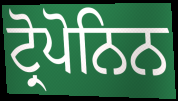
ਟ੍ਰੋਪੋਨਿਨ